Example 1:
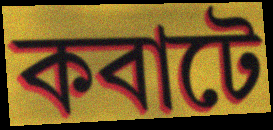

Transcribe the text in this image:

কবাটে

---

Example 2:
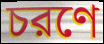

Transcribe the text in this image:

চরণে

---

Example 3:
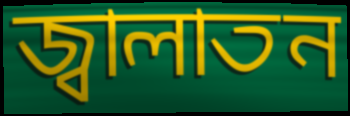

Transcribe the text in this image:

জ্বালাতন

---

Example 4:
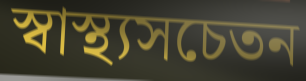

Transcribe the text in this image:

স্বাস্থ্যসচেতন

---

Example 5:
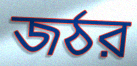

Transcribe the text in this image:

জঠর